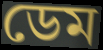
ডেম